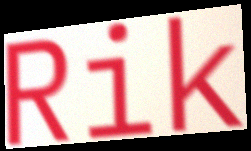
Rik